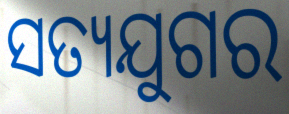
ସତ୍ୟଯୁଗର